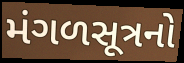
મંગળસૂત્રનો